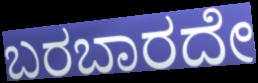
ಬರಬಾರದೇ